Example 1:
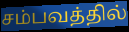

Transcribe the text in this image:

சம்பவத்தில்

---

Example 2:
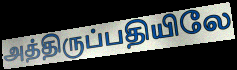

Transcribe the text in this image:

அத்திருப்பதியிலே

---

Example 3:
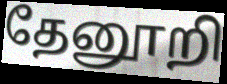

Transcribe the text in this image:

தேனூறி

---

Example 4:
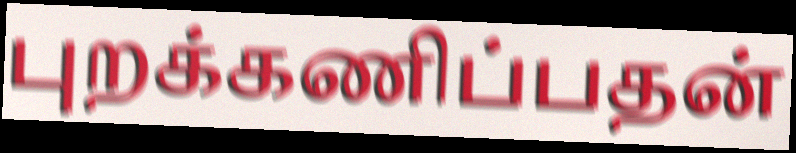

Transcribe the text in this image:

புறக்கணிப்பதன்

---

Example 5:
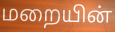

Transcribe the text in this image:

மறையின்